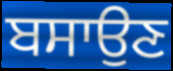
ਬਸਾਉਣ